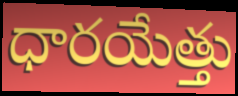
ధారయేత్తు